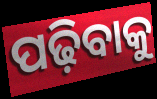
ପଢ଼ିବାକୁ